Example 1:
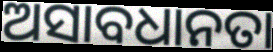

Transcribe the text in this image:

ଅସାବଧାନତା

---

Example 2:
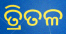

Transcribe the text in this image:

ତ୍ରିତଳ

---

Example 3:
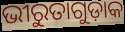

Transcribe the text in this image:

ଭୀରୁତାଗୁଡ଼ାକ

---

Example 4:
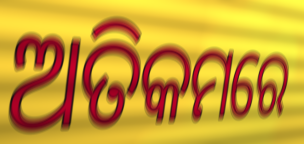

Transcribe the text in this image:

ଅତିକମରେ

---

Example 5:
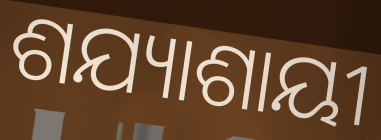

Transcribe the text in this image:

ଶଯ୍ୟାଶାୟୀ